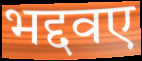
भद्दवए